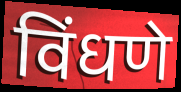
विंधणे